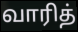
வாரித்